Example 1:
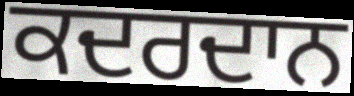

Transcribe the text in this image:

ਕਦਰਦਾਨ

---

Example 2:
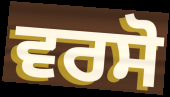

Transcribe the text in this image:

ਵਰਸੋ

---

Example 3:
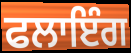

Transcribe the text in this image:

ਫਲਾਇੰਗ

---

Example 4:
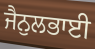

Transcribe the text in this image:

ਜੈਨੁਲਭਾਈ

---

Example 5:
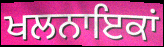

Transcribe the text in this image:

ਖਲਨਾਇਕਾਂ